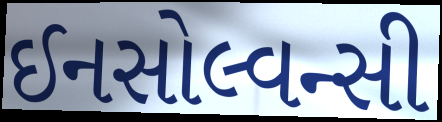
ઈનસોલ્વન્સી